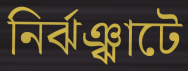
নির্ঝঞ্ঝাটে